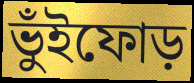
ভুঁইফোড়